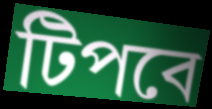
টিপবে